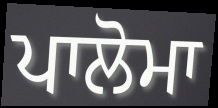
ਪਾਲੋਮਾ